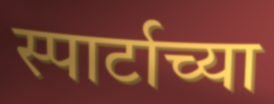
स्पार्टाच्या